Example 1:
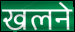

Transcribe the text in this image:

खलने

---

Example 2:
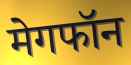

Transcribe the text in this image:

मेगफॉन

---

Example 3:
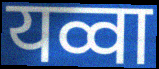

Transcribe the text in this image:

यव्वा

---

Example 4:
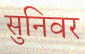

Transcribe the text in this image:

सुनिवर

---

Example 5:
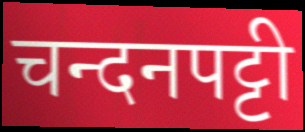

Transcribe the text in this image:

चन्दनपट्टी